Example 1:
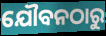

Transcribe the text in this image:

ଯୌବନଠାରୁ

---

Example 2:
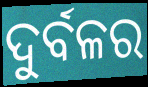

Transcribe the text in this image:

ଦୁର୍ବଳର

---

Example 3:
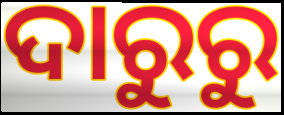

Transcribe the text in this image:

ଦାରୁରୁ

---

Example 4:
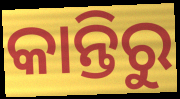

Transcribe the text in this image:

କାନ୍ତିରୁ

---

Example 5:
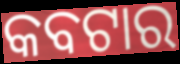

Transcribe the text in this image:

କବଟାର